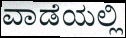
ವಾಡೆಯಲ್ಲಿ